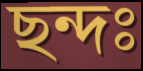
ছন্দঃ